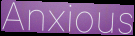
Anxious